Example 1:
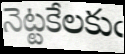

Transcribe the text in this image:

నెట్టకేలకుఁ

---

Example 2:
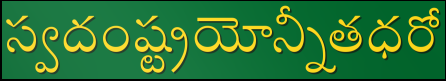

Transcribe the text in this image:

స్వదంష్ట్రయోన్నీతధరో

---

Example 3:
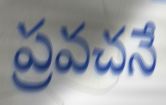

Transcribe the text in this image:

ప్రవచనే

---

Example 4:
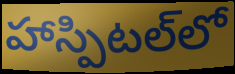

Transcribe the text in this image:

హాస్పిటల్‌లో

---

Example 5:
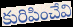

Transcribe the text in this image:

కురిపించేవి